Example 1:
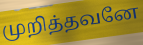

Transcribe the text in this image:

முறித்தவனே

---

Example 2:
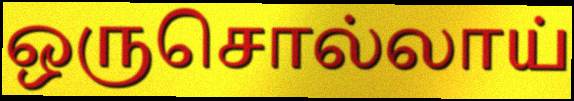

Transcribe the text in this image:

ஒருசொல்லாய்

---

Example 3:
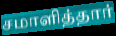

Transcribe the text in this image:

சமாளித்தார்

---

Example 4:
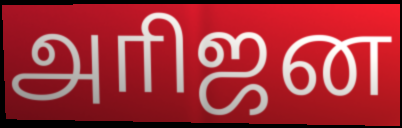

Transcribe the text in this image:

அரிஜன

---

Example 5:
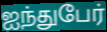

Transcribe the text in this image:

ஐந்துபேர்